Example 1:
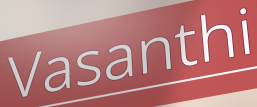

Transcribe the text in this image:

Vasanthi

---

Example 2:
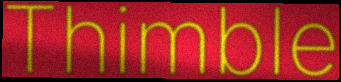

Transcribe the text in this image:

Thimble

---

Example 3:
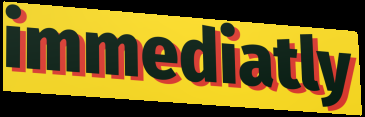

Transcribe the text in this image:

immediatly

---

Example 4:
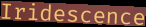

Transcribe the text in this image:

Iridescence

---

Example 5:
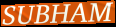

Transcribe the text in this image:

SUBHAM